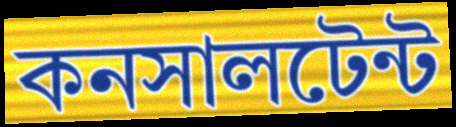
কনসালটেন্ট